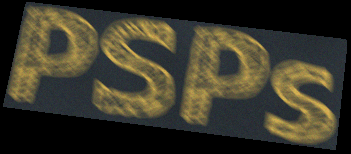
PSPs